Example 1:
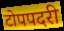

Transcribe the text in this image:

टोपपदरी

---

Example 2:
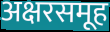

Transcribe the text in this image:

अक्षरसमूह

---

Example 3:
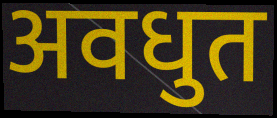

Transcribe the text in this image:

अवधुत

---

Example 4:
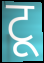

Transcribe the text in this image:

टू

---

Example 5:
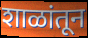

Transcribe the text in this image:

शाळांतून